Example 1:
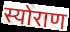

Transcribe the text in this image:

स्योराण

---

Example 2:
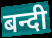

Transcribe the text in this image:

बन्दी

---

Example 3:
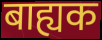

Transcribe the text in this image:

बाह्यक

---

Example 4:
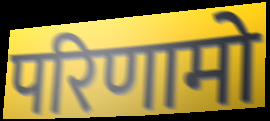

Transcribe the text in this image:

परिणामो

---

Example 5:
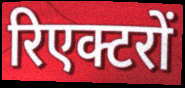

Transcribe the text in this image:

रिएक्टरों